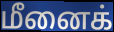
மீனைக்